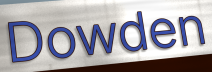
Dowden